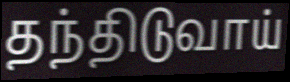
தந்திடுவாய்